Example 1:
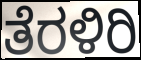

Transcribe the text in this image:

ತೆರಳಿರಿ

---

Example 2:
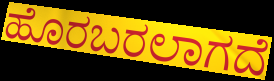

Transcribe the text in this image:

ಹೊರಬರಲಾಗದೆ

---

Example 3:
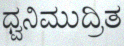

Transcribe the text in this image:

ಧ್ವನಿಮುದ್ರಿತ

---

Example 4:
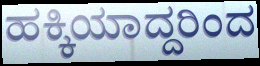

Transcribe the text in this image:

ಹಕ್ಕಿಯಾದ್ದರಿಂದ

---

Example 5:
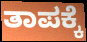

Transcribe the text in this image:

ತಾಪಕ್ಕೆ